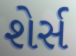
શેર્સ